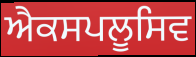
ਐਕਸਪਲੂਸਿਵ